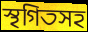
স্থগিতসহ